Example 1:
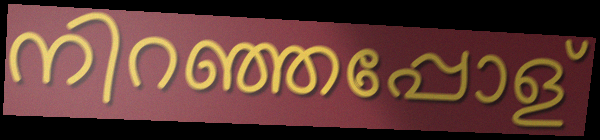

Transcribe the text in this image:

നിറഞ്ഞപ്പോള്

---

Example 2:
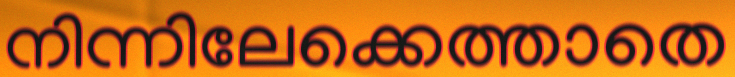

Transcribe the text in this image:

നിന്നിലേക്കെത്താതെ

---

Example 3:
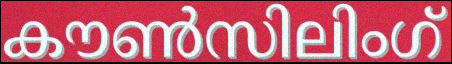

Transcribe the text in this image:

കൗൺസിലിംഗ്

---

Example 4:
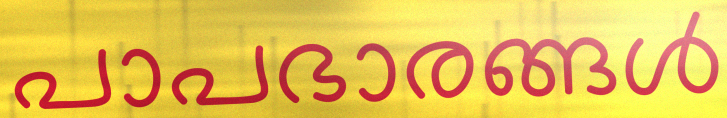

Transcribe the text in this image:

പാപഭാരങ്ങൾ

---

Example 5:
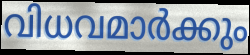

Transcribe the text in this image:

വിധവമാർക്കും